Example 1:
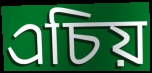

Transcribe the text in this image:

এচিয়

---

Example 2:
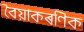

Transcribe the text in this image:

বৈয়াকৰণিক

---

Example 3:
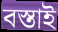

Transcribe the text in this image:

বস্তাই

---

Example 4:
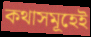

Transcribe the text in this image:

কথাসমূহেই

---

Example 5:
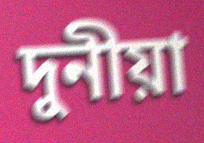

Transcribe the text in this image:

দুনীয়া